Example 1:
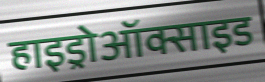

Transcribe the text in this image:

हाइड्रोऑक्साइड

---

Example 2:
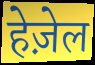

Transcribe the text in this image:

हेज़ेल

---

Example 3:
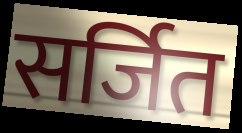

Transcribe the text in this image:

सर्जित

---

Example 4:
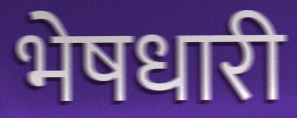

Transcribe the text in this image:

भेषधारी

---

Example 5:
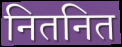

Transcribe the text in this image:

नितनित